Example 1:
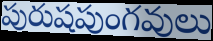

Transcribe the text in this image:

పురుషపుంగవులు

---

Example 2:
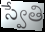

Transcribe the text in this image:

స్వేతి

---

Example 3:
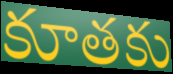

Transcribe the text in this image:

కూతకు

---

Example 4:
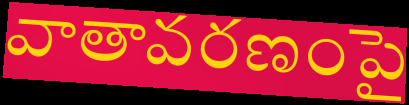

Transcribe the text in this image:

వాతావరణంపై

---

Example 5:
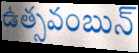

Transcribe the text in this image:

ఉత్సవంబున్